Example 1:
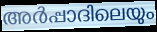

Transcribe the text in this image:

അർപ്പാദിലെയും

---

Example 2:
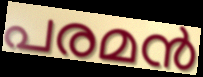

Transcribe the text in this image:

പരമൻ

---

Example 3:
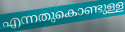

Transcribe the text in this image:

എന്നതുകൊണ്ടുള്ള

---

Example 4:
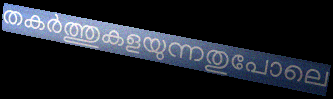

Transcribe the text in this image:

തകർത്തുകളയുന്നതുപോലെ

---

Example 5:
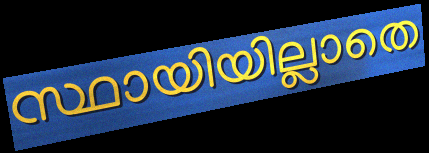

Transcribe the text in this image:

സ്ഥായിയില്ലാതെ